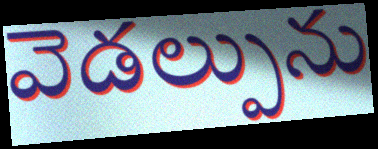
వెడల్పును